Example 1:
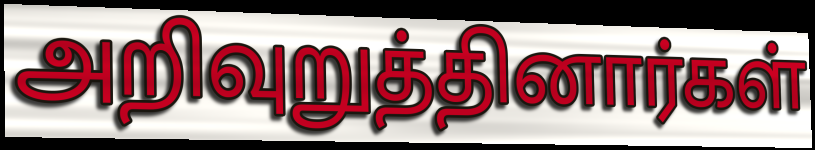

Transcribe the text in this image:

அறிவுறுத்தினார்கள்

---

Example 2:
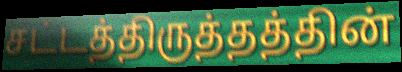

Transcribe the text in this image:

சட்டத்திருத்தத்தின்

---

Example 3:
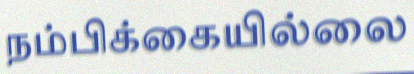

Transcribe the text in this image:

நம்பிக்கையில்லை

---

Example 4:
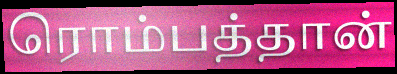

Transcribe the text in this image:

ரொம்பத்தான்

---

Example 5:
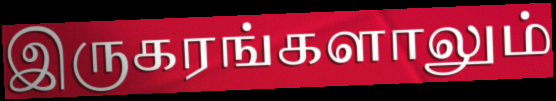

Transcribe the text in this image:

இருகரங்களாலும்